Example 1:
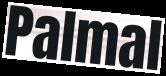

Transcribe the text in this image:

Palmal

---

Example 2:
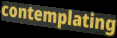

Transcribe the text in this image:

contemplating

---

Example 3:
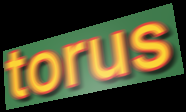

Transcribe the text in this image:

torus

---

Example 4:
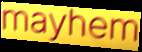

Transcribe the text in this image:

mayhem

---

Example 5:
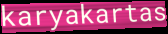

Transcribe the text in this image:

karyakartas